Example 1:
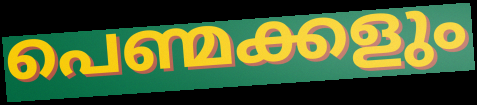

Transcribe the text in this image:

പെണ്മക്കളും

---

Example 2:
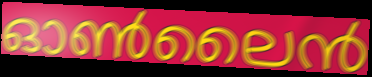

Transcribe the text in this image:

ഓൺലൈൻ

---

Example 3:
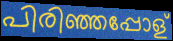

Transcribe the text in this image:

പിരിഞ്ഞപ്പോള്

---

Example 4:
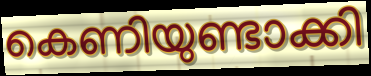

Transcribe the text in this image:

കെണിയുണ്ടാക്കി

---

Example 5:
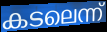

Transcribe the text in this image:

കടലെന്ന്